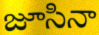
జూసినా